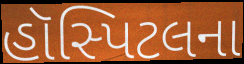
હૉસ્પિટલના